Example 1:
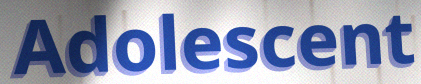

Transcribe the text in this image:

Adolescent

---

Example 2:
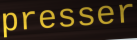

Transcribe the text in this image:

presser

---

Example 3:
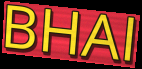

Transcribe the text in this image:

BHAI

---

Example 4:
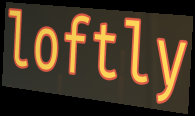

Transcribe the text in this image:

loftly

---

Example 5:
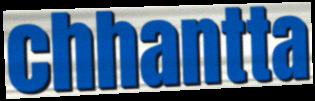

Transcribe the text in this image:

chhantta